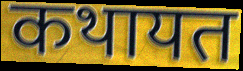
कथायत